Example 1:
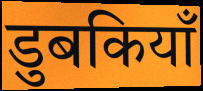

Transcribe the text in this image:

डुबकियाँ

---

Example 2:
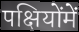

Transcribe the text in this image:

पक्षियोंमें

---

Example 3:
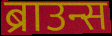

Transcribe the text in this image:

ब्राउन्स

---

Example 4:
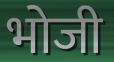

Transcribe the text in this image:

भोजी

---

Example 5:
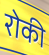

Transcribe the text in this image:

रोकी